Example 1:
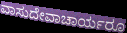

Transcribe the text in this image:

ವಾಸುದೇವಾಚಾರ್ಯರೂ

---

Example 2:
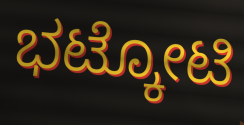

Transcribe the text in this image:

ಭಟ್ಕೋಟಿ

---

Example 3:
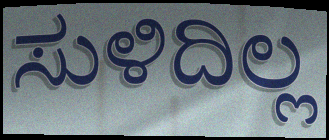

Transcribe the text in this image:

ಸುಳಿದಿಲ್ಲ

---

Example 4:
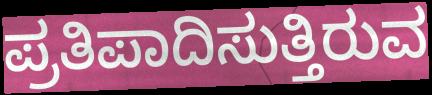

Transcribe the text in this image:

ಪ್ರತಿಪಾದಿಸುತ್ತಿರುವ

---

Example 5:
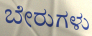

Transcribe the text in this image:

ಬೇರುಗಳು